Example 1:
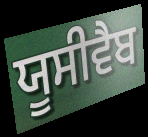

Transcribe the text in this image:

ਯੂਸੀਵੈਬ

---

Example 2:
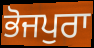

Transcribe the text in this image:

ਭੋਜਪੁਰਾ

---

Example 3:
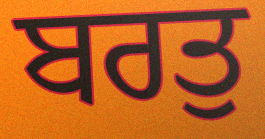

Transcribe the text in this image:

ਬਰਤੁ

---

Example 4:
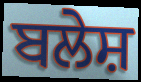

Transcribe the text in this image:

ਬਲੇਸ਼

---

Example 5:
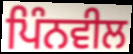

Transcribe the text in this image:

ਪਿੰਨਵੀਲ